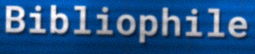
Bibliophile